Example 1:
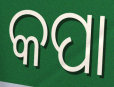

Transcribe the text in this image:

କପା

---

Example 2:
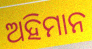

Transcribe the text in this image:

ଅହିମାନ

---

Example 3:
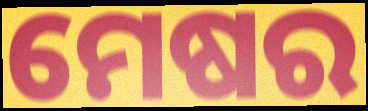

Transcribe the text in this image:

ମେଷର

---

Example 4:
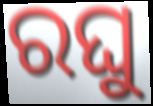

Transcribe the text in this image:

ରଘୁ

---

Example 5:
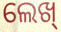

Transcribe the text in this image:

ଲେଖ୍